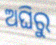
ଅଘିରୁ